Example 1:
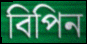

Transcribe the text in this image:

বিপিন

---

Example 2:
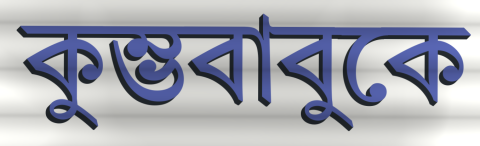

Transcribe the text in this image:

কুম্ভবাবুকে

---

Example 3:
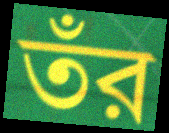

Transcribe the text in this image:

তঁর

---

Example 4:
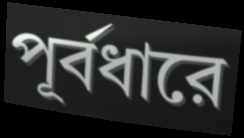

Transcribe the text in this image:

পূর্বধারে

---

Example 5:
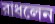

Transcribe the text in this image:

রাধলেন